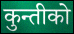
कुन्तीको